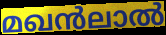
മഖൻലാൽ